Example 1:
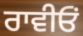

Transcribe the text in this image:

ਰਾਵੀਓਂ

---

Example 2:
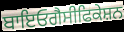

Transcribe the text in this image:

ਬਾਇਓਗੈਸੀਫਿਕੇਸ਼ਨ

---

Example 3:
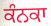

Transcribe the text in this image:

ਕੰਨਕਾ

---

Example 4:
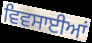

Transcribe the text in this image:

ਵਿਵਸਾਈਆਂ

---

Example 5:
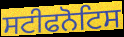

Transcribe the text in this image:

ਸਟੀਫਨੋਟਿਸ